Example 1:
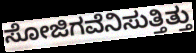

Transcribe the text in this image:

ಸೋಜಿಗವೆನಿಸುತ್ತಿತ್ತು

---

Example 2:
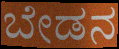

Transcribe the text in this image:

ಬೇಡನ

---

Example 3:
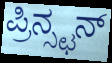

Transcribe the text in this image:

ಪ್ರಿನ್ಸ್ಟನ್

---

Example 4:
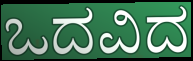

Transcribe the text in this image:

ಒದವಿದ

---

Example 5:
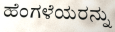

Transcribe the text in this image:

ಹೆಂಗಳೆಯರನ್ನು